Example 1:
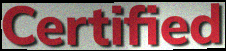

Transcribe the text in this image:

Certified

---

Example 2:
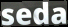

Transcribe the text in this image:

seda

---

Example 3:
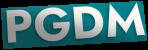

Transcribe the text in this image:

PGDM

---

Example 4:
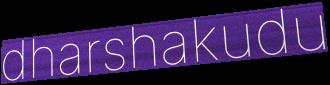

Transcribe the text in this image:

dharshakudu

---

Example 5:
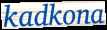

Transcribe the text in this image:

kadkona